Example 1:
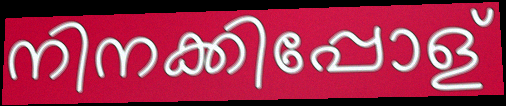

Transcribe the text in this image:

നിനക്കിപ്പോള്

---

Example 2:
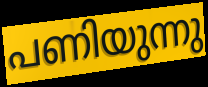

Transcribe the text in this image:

പണിയുന്നു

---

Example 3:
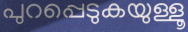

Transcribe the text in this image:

പുറപ്പെടുകയുള്ളൂ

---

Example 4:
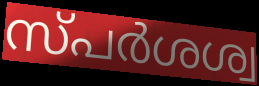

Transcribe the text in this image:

സ്പർശശ്വ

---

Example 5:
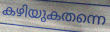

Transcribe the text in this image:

കഴിയുകതന്നെ